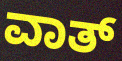
ವಾತ್